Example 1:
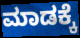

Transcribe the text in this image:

ಮಾಡಕ್ಕೆ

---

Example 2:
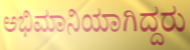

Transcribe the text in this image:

ಅಭಿಮಾನಿಯಾಗಿದ್ದರು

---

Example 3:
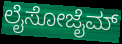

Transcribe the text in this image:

ಲೈಸೋಜೈಮ್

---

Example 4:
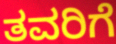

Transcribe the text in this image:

ತವರಿಗೆ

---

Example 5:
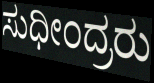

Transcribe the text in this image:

ಸುಧೀಂದ್ರರು